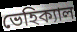
ভেহিক্যাল